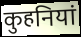
कुहनियां